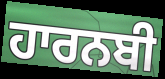
ਹਾਰਨਬੀ